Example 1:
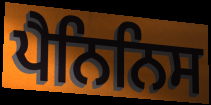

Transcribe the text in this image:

ਪੈਨਿਨਿਸ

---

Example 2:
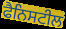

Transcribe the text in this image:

ਫੈਨਿਸਟੀਲ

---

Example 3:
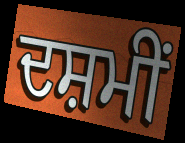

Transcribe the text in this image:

ਦਸ਼ਮੀਂ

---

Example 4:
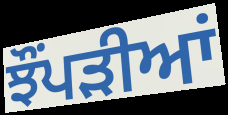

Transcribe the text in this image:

ਝੌਂਪੜੀਆਂ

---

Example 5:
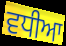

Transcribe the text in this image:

ਵਧੀਆ